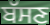
ਬੱਸਣ